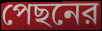
পেছনের